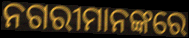
ନଗରୀମାନଙ୍କରେ